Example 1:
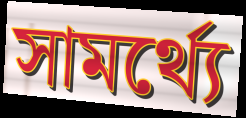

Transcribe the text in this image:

সামর্থ্যে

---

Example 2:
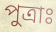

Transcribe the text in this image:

পুত্রাঃ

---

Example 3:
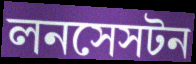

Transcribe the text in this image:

লনসেসটন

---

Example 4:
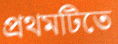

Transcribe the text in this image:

প্রথমটিতে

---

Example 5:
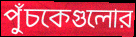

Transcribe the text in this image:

পুঁচকেগুলোর